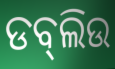
ଡବ୍‍ଲିଉ